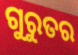
ଗୁରୁତର